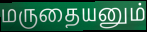
மருதையனும்